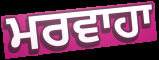
ਮਰਵਾਹਾ